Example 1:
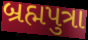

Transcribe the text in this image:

બ્રહ્મપુત્રા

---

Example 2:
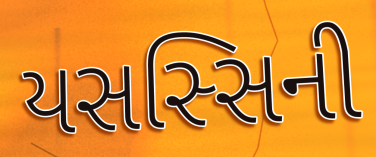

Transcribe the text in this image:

યસસ્સિની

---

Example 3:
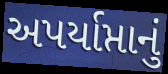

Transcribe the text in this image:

અપર્યાપ્તાનું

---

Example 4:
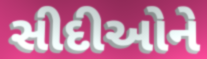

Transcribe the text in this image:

સીદીઓને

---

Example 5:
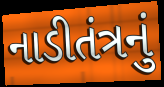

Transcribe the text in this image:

નાડીતંત્રનું